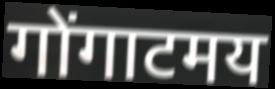
गोंगाटमय